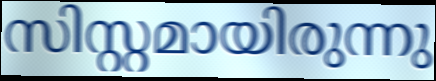
സിസ്റ്റമായിരുന്നു